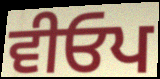
ਵੀਓਪ